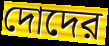
দোদের